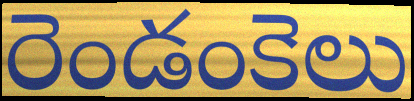
రెండంకెలు